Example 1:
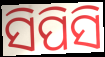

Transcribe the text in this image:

ସିପିସି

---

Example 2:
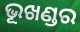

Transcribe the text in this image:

ଭୂଖଣ୍ଡର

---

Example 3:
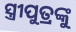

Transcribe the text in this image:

ସ୍ତ୍ରୀପୁତ୍ରଙ୍କୁ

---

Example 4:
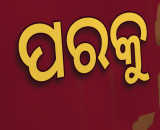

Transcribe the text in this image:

ପରକୁ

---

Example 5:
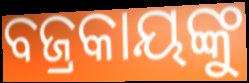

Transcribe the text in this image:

ବଜ୍ରକାୟଙ୍କୁ